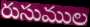
రుసుముల